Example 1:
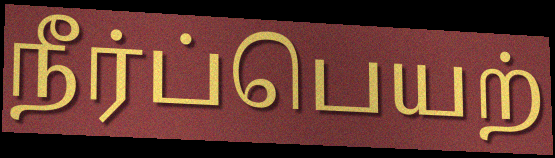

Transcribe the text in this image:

நீர்ப்பெயற்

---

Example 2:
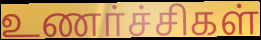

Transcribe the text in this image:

உணர்ச்சிகள்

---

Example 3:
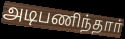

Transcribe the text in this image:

அடிபணிந்தார்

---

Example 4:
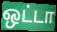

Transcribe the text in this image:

ஒட்டா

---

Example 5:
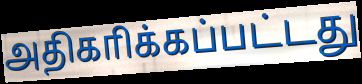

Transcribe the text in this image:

அதிகரிக்கப்பட்டது